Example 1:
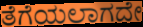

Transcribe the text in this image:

ತೆಗೆಯಲಾಗದೇ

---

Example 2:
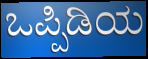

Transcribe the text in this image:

ಒಪ್ಪಿಡಿಯ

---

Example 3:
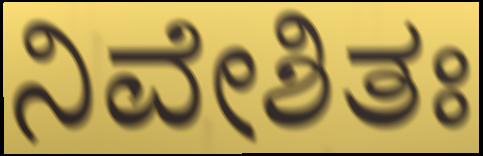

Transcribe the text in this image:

ನಿವೇಶಿತಃ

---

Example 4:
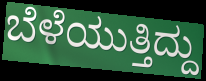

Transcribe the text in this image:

ಬೆಳೆಯುತ್ತಿದ್ದು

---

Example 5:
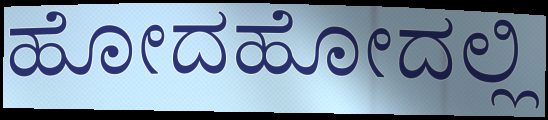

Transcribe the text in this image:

ಹೋದಹೋದಲ್ಲಿ